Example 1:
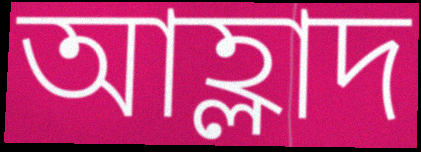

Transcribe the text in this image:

আহ্লাদ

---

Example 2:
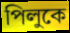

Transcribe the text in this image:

পিলুকে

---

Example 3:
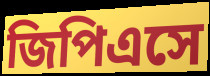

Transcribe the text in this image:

জিপিএসে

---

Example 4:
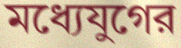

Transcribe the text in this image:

মধ্যেযুগের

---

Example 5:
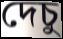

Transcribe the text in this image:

দেচু